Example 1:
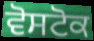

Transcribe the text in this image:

ਵੋਸਟੋਕ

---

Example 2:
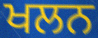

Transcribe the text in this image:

ਖਲਨ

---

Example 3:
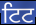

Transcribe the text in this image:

ਟਿਟ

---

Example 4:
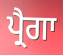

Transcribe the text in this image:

ਪ੍ਰੈਗਾ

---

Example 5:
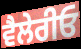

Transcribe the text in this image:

ਵੈਲੇਰੀਓ